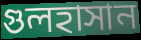
গুলহাসান